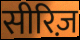
सीरिज़